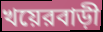
খয়েরবাড়ী